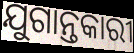
ଯୁଗାନ୍ତକାରୀ